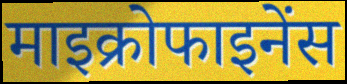
माइक्रोफाइनेंस